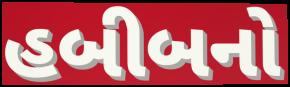
હબીબનો